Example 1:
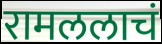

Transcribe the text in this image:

रामललाचं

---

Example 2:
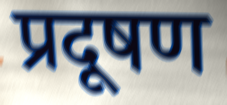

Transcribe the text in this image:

प्रदूषण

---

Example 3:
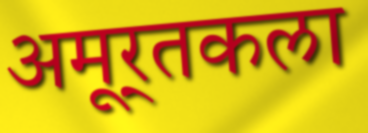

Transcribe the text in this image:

अमूर्तकला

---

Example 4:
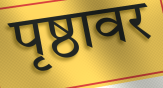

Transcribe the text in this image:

पृष्ठावर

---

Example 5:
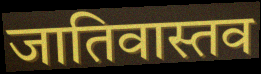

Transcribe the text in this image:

जातिवास्तव